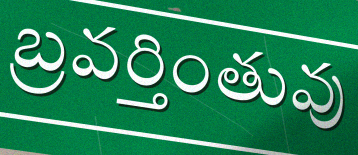
బ్రవర్తింతువు